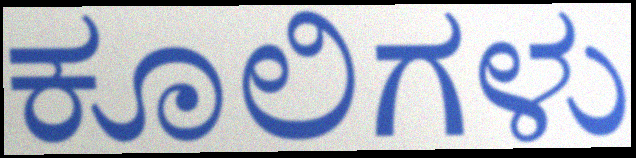
ಕೂಲಿಗಳು